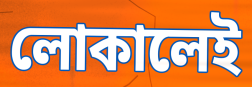
লোকালেই